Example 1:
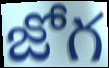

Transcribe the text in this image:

జోగ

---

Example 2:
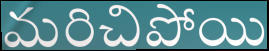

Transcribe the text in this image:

మరిచిపోయి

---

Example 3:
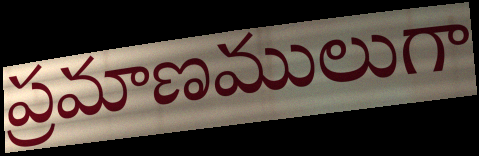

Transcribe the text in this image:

ప్రమాణములుగా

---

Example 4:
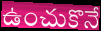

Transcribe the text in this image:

ఉంచుకొనే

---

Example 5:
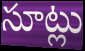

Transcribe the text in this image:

సూట్లు